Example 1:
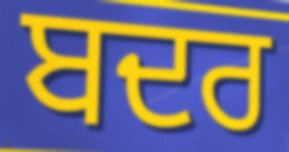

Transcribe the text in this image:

ਬਦਰ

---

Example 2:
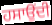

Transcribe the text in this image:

ਹਸਾਉਂਦੀ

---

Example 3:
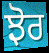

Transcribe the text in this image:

ਝੋਰ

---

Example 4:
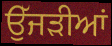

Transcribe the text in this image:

ਉੱਜੜੀਆਂ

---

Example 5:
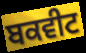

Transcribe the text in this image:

ਬਕਵੀਟ